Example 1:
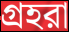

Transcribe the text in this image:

গ্রহরা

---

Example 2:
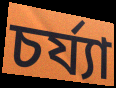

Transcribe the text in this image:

চর্য্যা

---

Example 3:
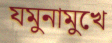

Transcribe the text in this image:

যমুনামুখে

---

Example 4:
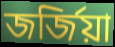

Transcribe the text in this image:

জর্জিয়া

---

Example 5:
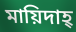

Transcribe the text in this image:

মায়িদাহ্